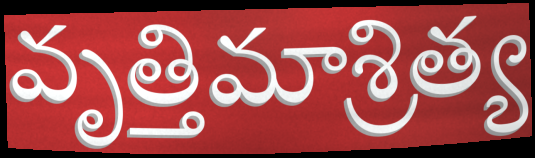
వృత్తిమాశ్రిత్య